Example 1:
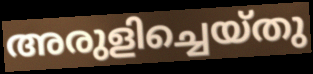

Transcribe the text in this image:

അരുളിച്ചെയ്തു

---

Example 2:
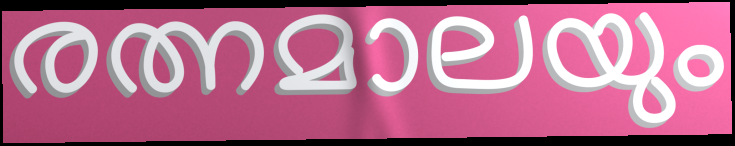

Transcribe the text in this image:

രത്നമാലയും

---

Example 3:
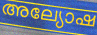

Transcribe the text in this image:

അല്യോഷ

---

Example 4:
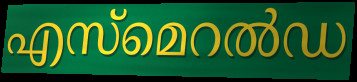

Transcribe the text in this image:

എസ്മെറൽഡ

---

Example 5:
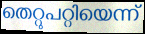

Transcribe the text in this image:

തെറ്റുപറ്റിയെന്ന്